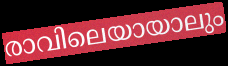
രാവിലെയായാലും